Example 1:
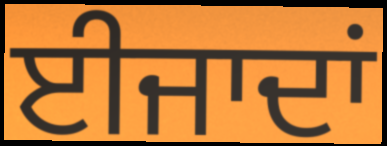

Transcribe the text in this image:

ਈਜਾਦਾਂ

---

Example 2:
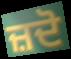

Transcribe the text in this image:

ਜ਼ਦੋ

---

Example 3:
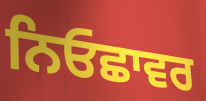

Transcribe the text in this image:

ਨਿਓਛਾਵਰ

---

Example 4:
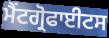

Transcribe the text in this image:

ਮੈਂਟਗ੍ਰੋਫਾਈਟਸ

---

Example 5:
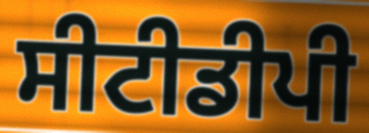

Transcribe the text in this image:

ਸੀਟੀਡੀਪੀ